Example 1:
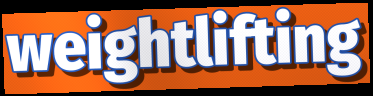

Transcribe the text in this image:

weightlifting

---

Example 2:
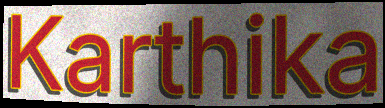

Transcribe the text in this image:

Karthika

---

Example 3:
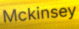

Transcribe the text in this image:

Mckinsey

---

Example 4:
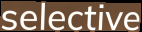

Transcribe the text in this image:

selective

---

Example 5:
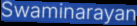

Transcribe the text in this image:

Swaminarayan